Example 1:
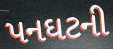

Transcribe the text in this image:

પનઘટની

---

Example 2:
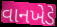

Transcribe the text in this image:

વાનખેડે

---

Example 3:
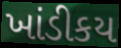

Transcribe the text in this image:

ખાંડીકય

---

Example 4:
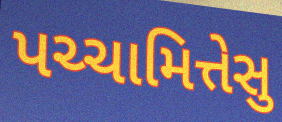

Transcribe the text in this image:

પચ્ચામિત્તેસુ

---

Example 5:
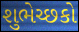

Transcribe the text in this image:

શુભેચ્છકો